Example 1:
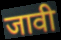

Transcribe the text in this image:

जावी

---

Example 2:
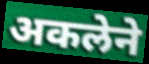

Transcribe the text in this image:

अकलेने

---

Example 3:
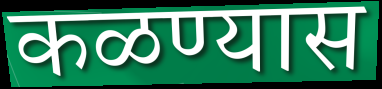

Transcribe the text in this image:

कळण्यास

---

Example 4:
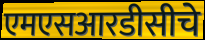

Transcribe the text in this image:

एमएसआरडीसीचे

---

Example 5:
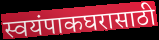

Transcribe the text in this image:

स्वयंपाकघरासाठी